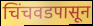
चिंचवडपासून